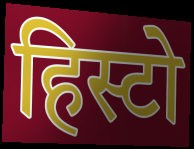
हिस्टो